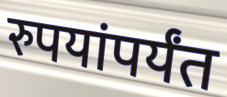
रुपयांपर्यंत